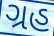
ગ્રહ